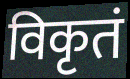
विकृतं